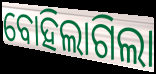
ବୋହିଲାଗିଲା